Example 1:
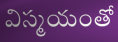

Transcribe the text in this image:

విస్మయంతో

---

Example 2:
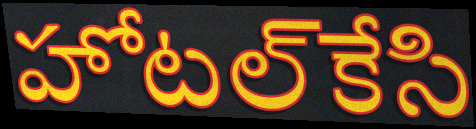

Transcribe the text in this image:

హోటల్‌కేసి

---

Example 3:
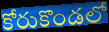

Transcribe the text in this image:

కోరుకొండలో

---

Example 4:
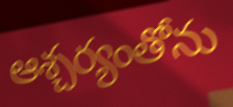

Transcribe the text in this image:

ఆశ్చర్యంతోను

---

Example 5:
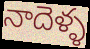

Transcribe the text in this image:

నాదెళ్ళ